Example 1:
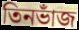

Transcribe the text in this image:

তিনভাঁজ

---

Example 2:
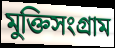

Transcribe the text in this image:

মুক্তিসংগ্রাম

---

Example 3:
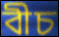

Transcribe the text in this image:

বীচ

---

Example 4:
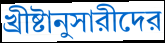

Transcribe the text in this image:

খ্রীষ্টানুসারীদের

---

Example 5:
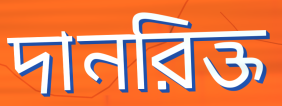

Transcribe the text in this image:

দানরিক্ত